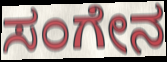
ಸಂಗೇನ